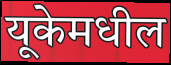
यूकेमधील